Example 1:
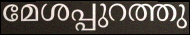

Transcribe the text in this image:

മേശപ്പുറത്തു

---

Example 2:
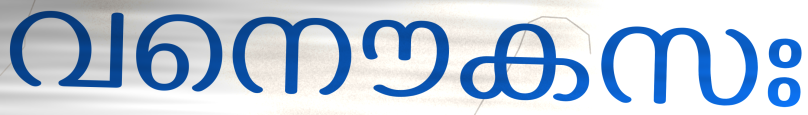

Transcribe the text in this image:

വനൌകസഃ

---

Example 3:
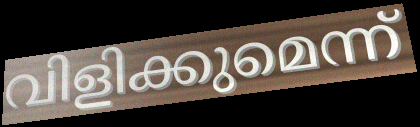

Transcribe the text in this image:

വിളിക്കുമെന്ന്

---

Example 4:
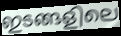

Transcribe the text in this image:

ഇടങ്ങളിലെ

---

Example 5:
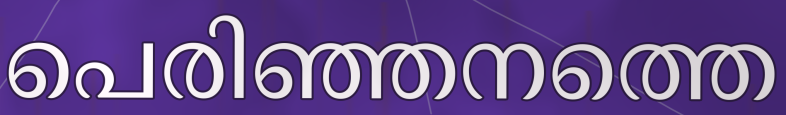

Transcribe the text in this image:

പെരിഞ്ഞനത്തെ